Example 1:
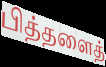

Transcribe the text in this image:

பித்தளைத்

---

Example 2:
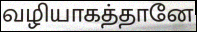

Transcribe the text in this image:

வழியாகத்தானே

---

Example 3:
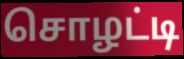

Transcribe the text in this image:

சொழட்டி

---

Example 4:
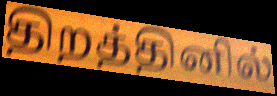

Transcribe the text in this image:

திறத்தினில்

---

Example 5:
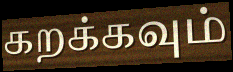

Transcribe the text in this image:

கறக்கவும்